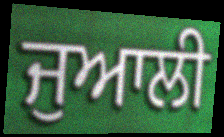
ਜੁਆਲੀ